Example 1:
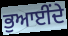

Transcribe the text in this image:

ਭੁਆਈਂਦੇ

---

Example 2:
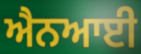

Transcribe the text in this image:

ਐਨਆਈ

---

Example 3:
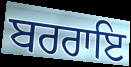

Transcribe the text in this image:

ਬਰਰਾਇ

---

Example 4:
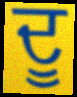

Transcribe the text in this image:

ਦੂ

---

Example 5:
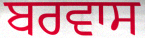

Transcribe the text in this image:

ਬਰਵਾਸ